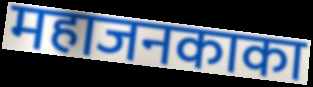
महाजनकाका